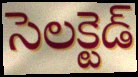
సెలక్టెడ్